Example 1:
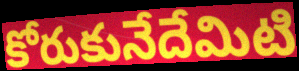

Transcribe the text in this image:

కోరుకునేదేమిటి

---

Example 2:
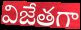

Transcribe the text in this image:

విజేతగా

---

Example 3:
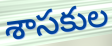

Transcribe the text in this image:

శాసకుల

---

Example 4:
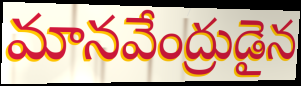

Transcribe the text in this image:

మానవేంద్రుడైన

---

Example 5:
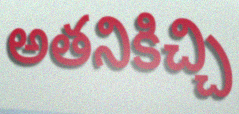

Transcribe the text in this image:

అతనికిచ్చి